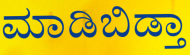
ಮಾಡಿಬಿಡ್ತಾ